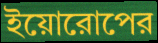
ইয়োরোপের